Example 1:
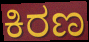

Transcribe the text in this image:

ಕಿರಣ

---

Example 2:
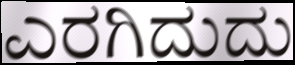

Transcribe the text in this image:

ಎರಗಿದುದು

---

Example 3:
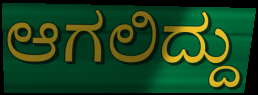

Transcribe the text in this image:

ಆಗಲಿದ್ದು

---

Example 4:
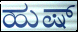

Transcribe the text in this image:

ಹುಷ್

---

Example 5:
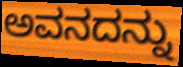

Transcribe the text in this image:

ಅವನದನ್ನು